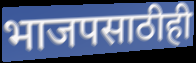
भाजपसाठीही